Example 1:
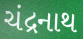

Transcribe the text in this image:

ચંદ્રનાથ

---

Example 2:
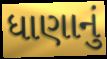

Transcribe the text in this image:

ધાણાનું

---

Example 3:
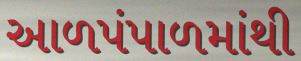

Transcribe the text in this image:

આળપંપાળમાંથી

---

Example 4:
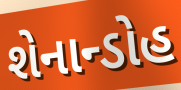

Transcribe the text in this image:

શેનાન્ડોહ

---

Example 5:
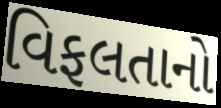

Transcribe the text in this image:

વિફલતાનો